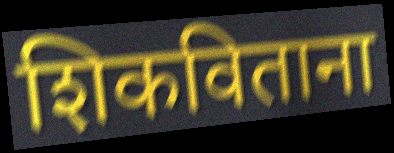
शिकविताना